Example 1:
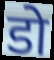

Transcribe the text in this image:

डो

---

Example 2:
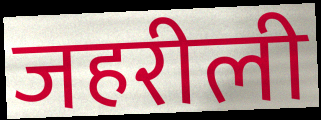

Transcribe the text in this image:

जहरीली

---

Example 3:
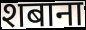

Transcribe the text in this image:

शबाना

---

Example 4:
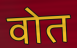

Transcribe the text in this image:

वोत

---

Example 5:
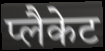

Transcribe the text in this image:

प्लैकेट